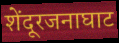
शेंदूरजनाघाट